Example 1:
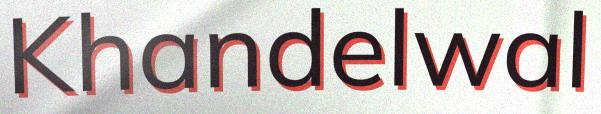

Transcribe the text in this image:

Khandelwal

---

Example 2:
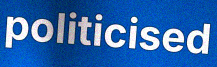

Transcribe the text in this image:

politicised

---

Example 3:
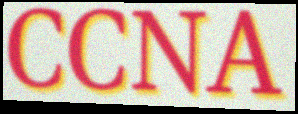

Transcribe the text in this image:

CCNA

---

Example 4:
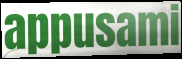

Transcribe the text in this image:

appusami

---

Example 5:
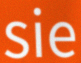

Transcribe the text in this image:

sie